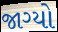
જાગ્યો